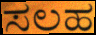
ಸಲಹ